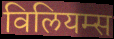
विलियम्स